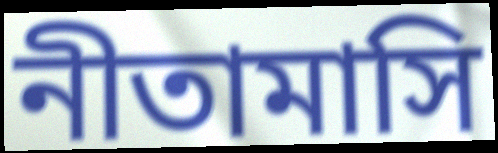
নীতামাসি